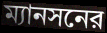
ম্যানসনের